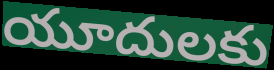
యూదులకు